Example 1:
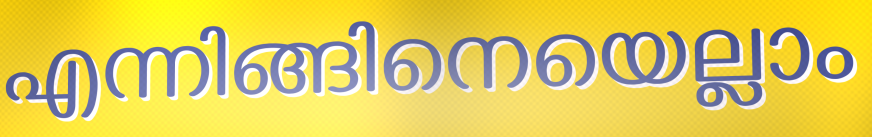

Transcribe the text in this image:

എന്നിങ്ങിനെയെല്ലാം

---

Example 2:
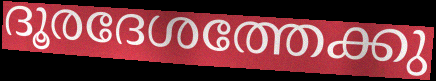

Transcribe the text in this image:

ദൂരദേശത്തേക്കു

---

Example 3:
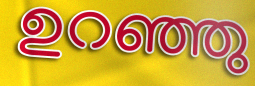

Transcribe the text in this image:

ഉറഞ്ഞു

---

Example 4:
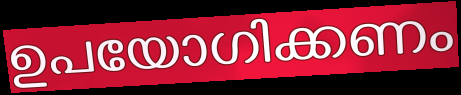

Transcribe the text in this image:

ഉപയോഗിക്കണം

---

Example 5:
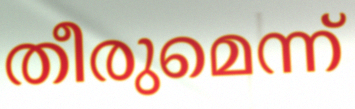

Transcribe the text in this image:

തീരുമെന്ന്